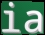
ia